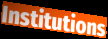
Institutions